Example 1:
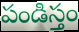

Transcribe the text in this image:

పండిస్తం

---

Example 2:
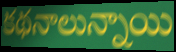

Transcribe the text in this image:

కథనాలున్నాయి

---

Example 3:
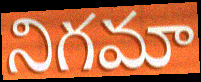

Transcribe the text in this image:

నిగమా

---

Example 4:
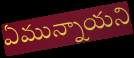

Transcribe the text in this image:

ఏమున్నాయని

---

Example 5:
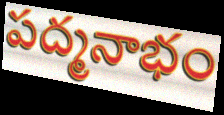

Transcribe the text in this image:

పద్మనాభం